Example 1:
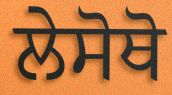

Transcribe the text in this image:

ਲੇਸੋਥੋ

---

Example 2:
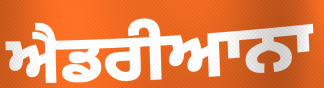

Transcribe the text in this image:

ਐਡਰੀਆਨਾ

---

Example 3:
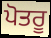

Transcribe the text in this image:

ਪੋਤਰੂ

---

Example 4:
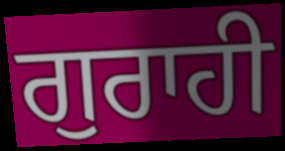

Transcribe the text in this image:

ਗੁਰਾਹੀ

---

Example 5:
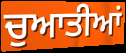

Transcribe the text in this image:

ਚੁਆਤੀਆਂ